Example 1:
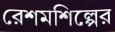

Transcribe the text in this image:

রেশমশিল্পের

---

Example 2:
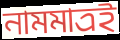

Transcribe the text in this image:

নামমাত্রই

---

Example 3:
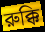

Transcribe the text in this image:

রুক্কি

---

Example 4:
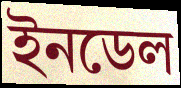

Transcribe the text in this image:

ইনডেল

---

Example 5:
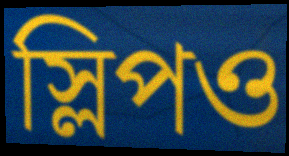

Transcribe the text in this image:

স্লিপও